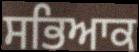
ਸਭਿਆਕ